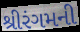
શ્રીરંગમની